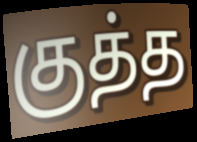
குத்த